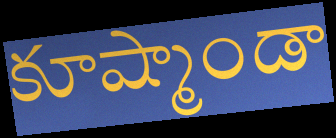
కూష్మాండా